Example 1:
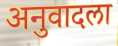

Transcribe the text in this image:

अनुवादला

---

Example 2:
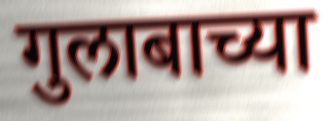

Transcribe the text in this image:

गुलाबाच्या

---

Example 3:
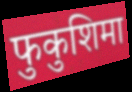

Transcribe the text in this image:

फुकुशिमा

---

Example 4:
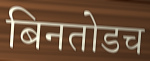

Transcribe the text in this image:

बिनतोडच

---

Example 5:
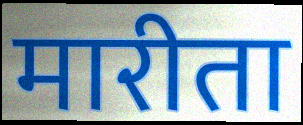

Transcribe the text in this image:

मारीता